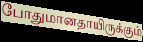
போதுமானதாயிருக்கும்